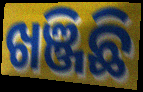
ଖଞ୍ଜିଛି